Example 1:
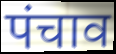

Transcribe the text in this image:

पंचाव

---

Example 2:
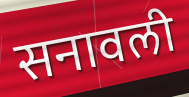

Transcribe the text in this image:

सनावली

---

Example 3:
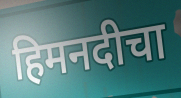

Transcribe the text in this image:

हिमनदीचा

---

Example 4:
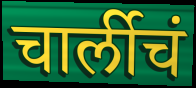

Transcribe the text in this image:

चार्लीचं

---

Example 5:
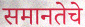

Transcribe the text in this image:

समानतेचे